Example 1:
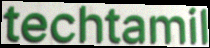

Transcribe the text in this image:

techtamil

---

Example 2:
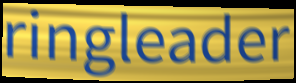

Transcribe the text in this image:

ringleader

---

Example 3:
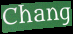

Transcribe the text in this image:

Chang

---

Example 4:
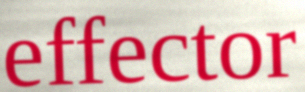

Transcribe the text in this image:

effector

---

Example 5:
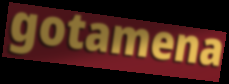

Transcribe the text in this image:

gotamena